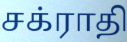
சக்ராதி